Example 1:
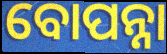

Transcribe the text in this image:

ବୋପନ୍ନା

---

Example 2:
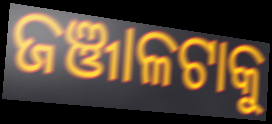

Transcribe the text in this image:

ଜଞ୍ଜାଳଟାକୁ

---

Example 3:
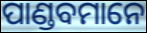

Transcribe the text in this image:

ପାଣ୍ଡବମାନେ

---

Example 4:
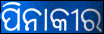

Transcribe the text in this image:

ପିନାକୀର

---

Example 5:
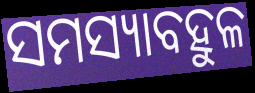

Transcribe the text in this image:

ସମସ୍ୟାବହୁଳ